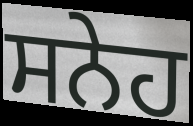
ਸਨੇਹ